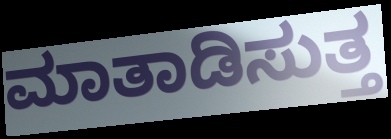
ಮಾತಾಡಿಸುತ್ತ